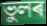
ভুলৰ